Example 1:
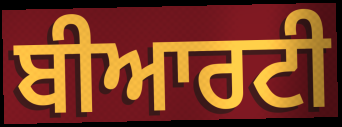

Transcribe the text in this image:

ਬੀਆਰਟੀ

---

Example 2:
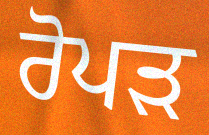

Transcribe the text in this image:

ਰੋਪਡ਼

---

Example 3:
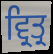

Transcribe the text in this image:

ਵ੍ਰਿਤ੍ਰ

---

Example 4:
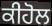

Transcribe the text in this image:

ਕੀਹੋਲ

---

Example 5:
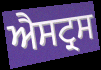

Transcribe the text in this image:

ਐਸਟ੍ਰਸ